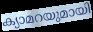
ക്യാമറയുമായി